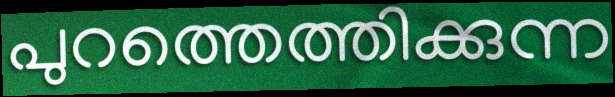
പുറത്തെത്തിക്കുന്ന